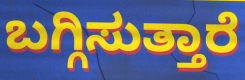
ಬಗ್ಗಿಸುತ್ತಾರೆ